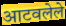
आटवलेले